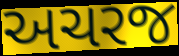
અચરજ